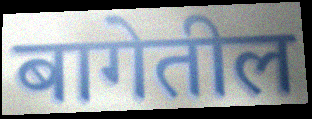
बागेतील